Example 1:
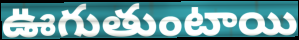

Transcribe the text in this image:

ఊగుతుంటాయి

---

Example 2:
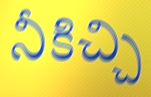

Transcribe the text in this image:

నీకిచ్చి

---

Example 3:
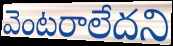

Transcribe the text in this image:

వెంటరాలేదని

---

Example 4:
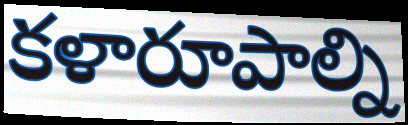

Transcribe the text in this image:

కళారూపాల్ని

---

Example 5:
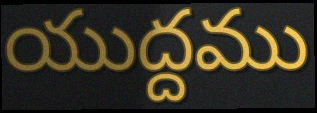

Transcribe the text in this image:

యుద్దము